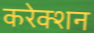
करेक्शन